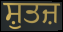
ਸ਼ੁਤਜ਼